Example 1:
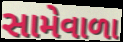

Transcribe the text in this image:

સામેવાળા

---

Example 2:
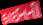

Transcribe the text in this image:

કાઈનની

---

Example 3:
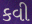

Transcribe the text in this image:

કવી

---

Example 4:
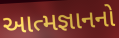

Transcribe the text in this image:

આત્મજ્ઞાનનો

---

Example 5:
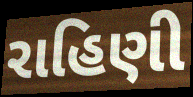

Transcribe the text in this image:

રાહિણી